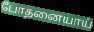
போதனையாய்